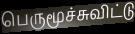
பெருமூச்சுவிட்டு